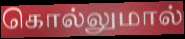
கொல்லுமால்